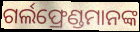
ଗର୍ଲଫ୍ରେଣ୍ଡମାନଙ୍କ